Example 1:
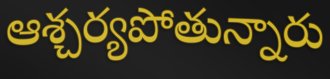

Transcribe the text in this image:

ఆశ్చర్యపోతున్నారు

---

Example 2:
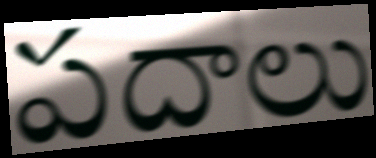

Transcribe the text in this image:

పదాలు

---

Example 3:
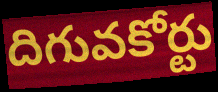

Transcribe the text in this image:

దిగువకోర్టు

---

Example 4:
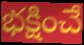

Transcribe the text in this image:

భక్షించే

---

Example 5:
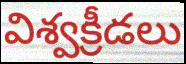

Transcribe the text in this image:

విశ్వక్రీడలు